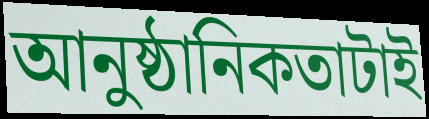
আনুষ্ঠানিকতাটাই